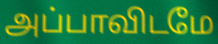
அப்பாவிடமே